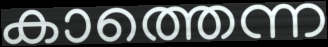
കാത്തെന്ന